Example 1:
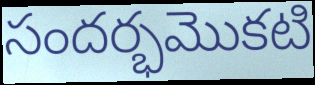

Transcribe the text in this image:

సందర్భమొకటి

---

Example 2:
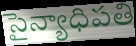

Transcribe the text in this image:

సైన్యాధిపతి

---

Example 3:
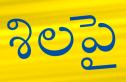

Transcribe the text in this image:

శిలపై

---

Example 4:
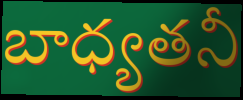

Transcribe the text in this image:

బాధ్యతనీ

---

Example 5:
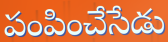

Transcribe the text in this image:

పంపించేసేడు